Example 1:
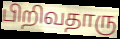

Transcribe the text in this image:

பிறிவதாரு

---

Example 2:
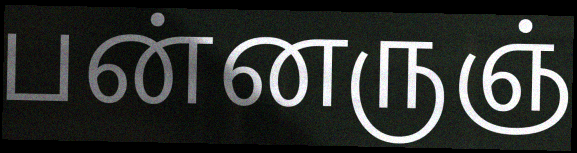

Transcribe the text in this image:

பன்னருஞ்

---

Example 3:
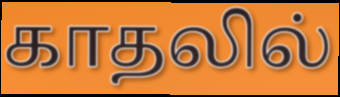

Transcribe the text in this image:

காதலில்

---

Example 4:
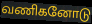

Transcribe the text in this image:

வணிகனோடு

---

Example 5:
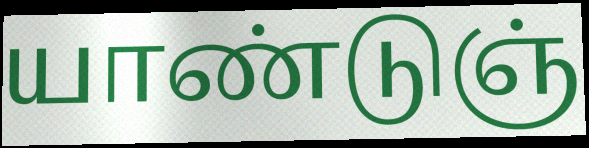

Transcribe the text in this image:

யாண்டுஞ்